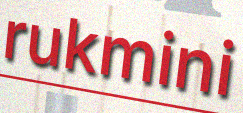
rukmini